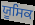
ਯੂਸਿਕ